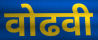
वोढवी